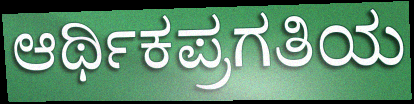
ಆರ್ಥಿಕಪ್ರಗತಿಯ